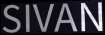
SIVAN